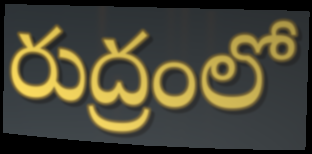
రుద్రంలో